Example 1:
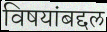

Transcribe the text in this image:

विषयांबद्दल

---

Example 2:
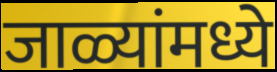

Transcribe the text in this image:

जाळ्यांमध्ये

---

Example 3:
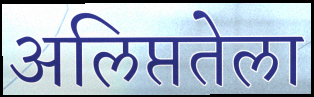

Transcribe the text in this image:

अलिप्ततेला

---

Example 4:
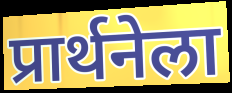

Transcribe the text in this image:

प्रार्थनेला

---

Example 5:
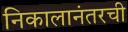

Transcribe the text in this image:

निकालानंतरची